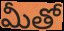
మీతో